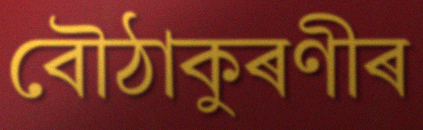
বৌঠাকুৰণীৰ